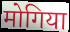
मोगिया